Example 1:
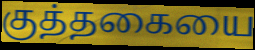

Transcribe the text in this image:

குத்தகையை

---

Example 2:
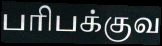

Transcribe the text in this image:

பரிபக்குவ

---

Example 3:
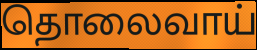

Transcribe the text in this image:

தொலைவாய்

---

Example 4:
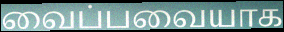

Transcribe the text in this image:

வைப்பவையாக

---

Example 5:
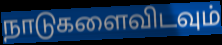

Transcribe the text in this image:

நாடுகளைவிடவும்